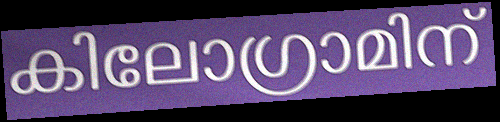
കിലോഗ്രാമിന്